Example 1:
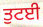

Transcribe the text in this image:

ਤੁਟਈ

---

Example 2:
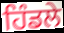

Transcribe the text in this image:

ਹਿੰਡਲੇ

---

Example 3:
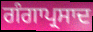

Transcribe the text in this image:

ਗੰਗਾਪ੍ਰਸਾਦ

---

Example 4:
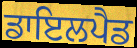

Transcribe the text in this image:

ਡਾਇਲਪੈਡ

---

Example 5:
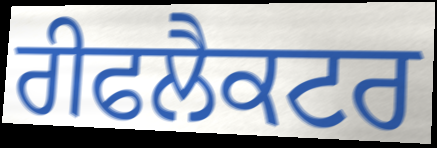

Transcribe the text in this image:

ਰੀਫਲੈਕਟਰ